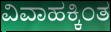
ವಿವಾಹಕ್ಕಿಂತ